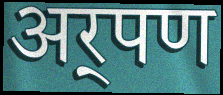
अर्पण